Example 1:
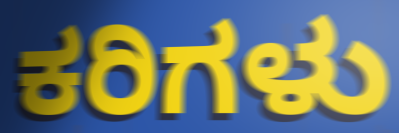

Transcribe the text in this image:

ಕರಿಗಳು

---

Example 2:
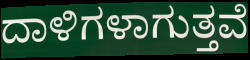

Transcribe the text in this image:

ದಾಳಿಗಳಾಗುತ್ತವೆ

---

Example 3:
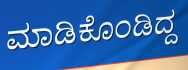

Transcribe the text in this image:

ಮಾಡಿಕೊಂಡಿದ್ದ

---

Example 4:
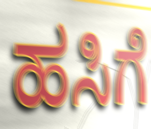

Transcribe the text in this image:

ಹಸಿಗೆ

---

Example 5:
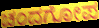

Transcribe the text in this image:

ಚಂದಗೋಪ